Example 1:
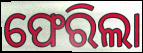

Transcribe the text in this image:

ଫେରିଲା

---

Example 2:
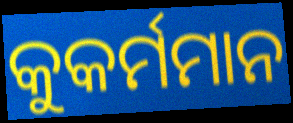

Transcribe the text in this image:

କୁକର୍ମମାନ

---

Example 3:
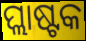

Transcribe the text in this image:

ପ୍ଲାଷ୍ଟକ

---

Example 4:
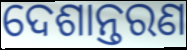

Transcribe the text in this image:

ଦେଶାନ୍ତରଣ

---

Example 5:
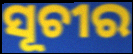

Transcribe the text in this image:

ସୂଚୀର